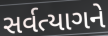
સર્વત્યાગને